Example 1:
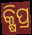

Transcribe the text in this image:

କ୍ଷିପ୍ର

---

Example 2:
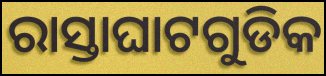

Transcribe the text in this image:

ରାସ୍ତାଘାଟଗୁଡିକ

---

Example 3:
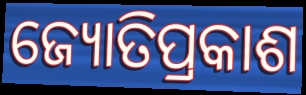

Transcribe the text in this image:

ଜ୍ୟୋତିପ୍ରକାଶ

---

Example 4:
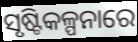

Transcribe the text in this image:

ସୃଷ୍ଟିକଳ୍ପନାରେ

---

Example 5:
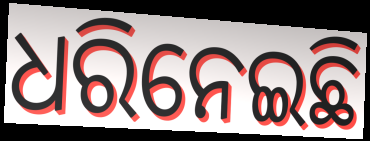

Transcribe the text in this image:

ଧରିନେଇଛି